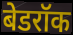
बेडरॉक